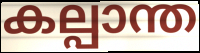
കല്പാന്ത